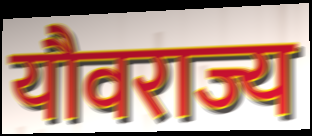
यौवराज्य